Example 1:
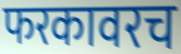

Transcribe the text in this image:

फरकावरच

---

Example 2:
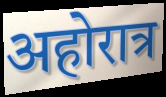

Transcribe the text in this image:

अहोरात्र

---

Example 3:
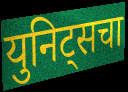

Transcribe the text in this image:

युनिट्सचा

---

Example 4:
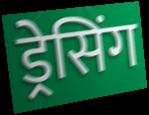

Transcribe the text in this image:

ड्रेसिंग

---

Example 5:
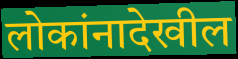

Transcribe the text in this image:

लोकांनादेखील